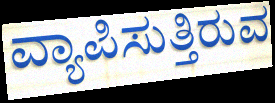
ವ್ಯಾಪಿಸುತ್ತಿರುವ